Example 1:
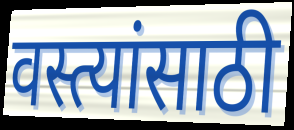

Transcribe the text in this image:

वस्त्यांसाठी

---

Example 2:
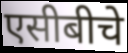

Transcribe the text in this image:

एसीबीचे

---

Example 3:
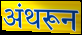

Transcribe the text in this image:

अंथरून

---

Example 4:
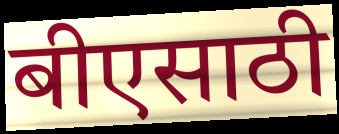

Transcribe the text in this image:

बीएसाठी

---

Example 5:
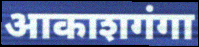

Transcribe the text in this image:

आकाशगंगा